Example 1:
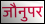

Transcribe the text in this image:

जौनुपर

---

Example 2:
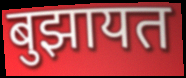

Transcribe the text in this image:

बुझायत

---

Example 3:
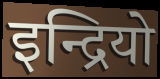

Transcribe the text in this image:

इन्द्रियो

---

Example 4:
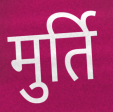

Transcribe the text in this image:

मुर्ति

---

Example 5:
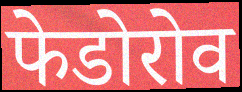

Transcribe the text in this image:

फेडोरोव